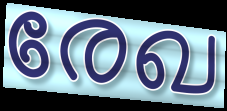
രേഖ